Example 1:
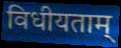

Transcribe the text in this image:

विधीयताम्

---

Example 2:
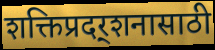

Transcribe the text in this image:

शक्तिप्रदर्शनासाठी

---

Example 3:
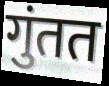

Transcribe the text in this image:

गुंतत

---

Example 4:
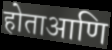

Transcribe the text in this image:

होताआणि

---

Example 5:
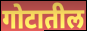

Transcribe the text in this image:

गोटातील